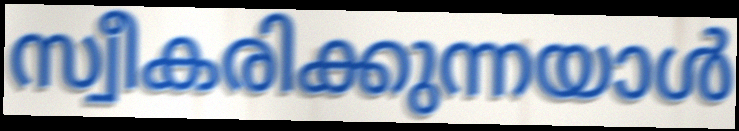
സ്വീകരിക്കുന്നയാൾ